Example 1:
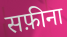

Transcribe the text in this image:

सफ़ीना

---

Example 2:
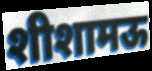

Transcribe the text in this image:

शीशामऊ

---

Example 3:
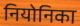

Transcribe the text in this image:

नियोनिका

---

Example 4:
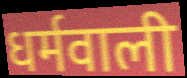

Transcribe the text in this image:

धर्मवाली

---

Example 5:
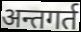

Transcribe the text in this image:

अन्तगर्त